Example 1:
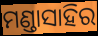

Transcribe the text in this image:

ମଣ୍ଡାସାହିର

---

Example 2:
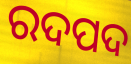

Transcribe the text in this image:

ରଦପଦ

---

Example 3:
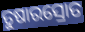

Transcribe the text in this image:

ତୁଷାରସ୍ରୋତ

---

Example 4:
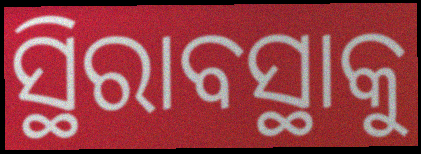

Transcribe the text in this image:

ସ୍ଥିରାବସ୍ଥାକୁ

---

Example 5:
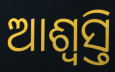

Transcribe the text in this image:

ଆଶ୍ଵସ୍ତି